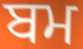
ਬਮ